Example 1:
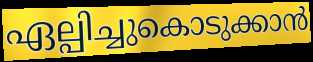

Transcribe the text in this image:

ഏല്പിച്ചുകൊടുക്കാൻ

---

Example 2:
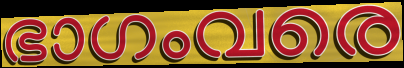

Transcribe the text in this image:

ഭാഗംവരെ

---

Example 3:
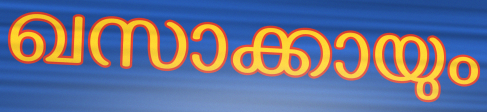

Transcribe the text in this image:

ഖസാക്കായും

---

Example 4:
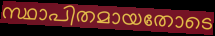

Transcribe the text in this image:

സ്ഥാപിതമായതോടെ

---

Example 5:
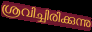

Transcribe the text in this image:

ശ്രവിച്ചിരിക്കുന്നു